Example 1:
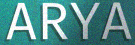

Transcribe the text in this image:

ARYA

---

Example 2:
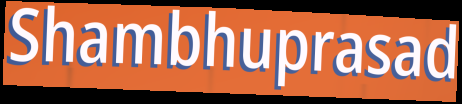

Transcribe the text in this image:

Shambhuprasad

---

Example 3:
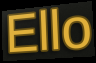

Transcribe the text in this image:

Ello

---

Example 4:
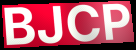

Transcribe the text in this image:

BJCP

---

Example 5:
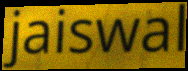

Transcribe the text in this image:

jaiswal